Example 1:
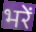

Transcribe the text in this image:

भरें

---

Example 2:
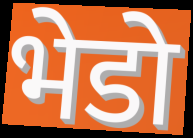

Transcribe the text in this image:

भेडो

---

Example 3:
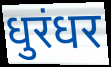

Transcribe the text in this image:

धुरंधर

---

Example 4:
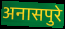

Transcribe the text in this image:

अनासपुरे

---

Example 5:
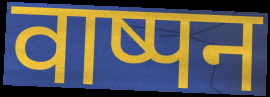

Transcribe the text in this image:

वाष्पन